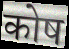
कोष